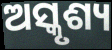
ଅସ୍କୃଶ୍ୟ